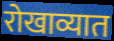
रोखाव्यात